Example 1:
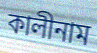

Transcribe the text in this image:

কালীনাম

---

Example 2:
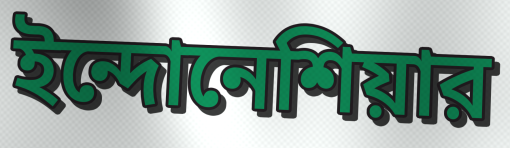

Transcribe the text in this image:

ইন্দোনেশিয়ার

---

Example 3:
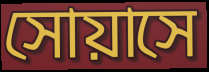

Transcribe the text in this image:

সোয়াসে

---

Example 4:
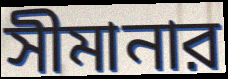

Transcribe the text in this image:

সীমানার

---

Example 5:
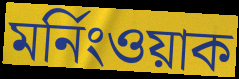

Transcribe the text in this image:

মর্নিংওয়াক